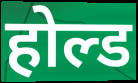
होल्ड